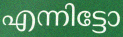
എന്നിട്ടോ